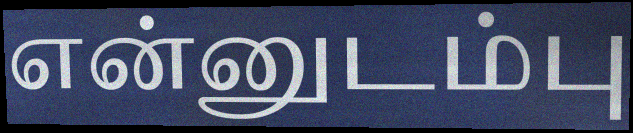
என்னுடம்பு